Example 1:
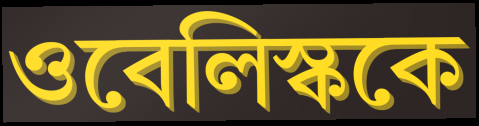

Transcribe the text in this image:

ওবেলিস্ককে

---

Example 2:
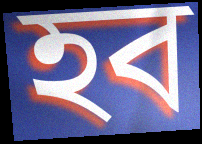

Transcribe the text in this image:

হব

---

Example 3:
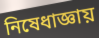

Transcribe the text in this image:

নিষেধাজ্ঞায়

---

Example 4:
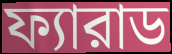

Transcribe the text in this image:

ফ্যারাড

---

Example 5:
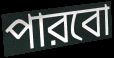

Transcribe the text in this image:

পারবো